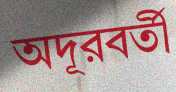
অদূরবর্তী